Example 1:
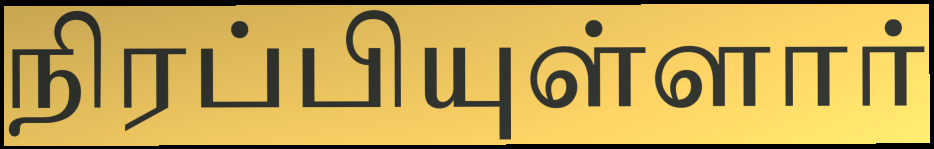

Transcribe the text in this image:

நிரப்பியுள்ளார்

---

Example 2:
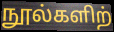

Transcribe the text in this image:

நூல்களிற்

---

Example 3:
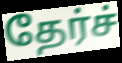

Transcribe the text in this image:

தேர்ச்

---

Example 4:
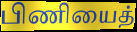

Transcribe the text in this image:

பிணியைத்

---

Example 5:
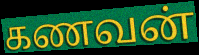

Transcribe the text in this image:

கணவன்